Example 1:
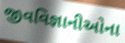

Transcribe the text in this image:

જીવવિજ્ઞાનીઓના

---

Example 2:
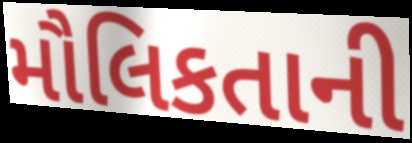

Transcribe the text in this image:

મૌલિકતાની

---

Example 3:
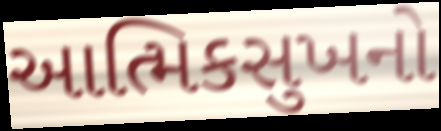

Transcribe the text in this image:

આત્મિકસુખનો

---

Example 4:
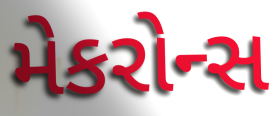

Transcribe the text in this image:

મેકરોન્સ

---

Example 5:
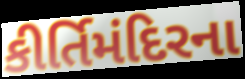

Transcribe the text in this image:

કીર્તિમંદિરના